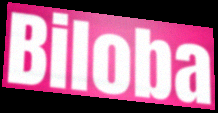
Biloba